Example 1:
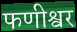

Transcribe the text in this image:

फणीश्वर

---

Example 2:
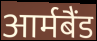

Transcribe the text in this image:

आर्मबैंड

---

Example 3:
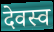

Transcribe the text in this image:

देवस्व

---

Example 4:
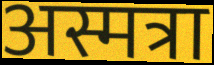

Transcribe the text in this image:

अस्मत्रा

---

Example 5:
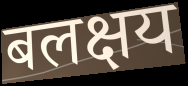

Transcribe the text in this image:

बलक्षय